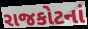
રાજકોટનાં